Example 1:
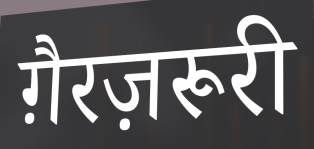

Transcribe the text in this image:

ग़ैरज़रूरी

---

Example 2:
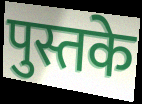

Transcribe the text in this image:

पुस्तके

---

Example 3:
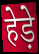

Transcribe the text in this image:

हेड़े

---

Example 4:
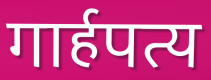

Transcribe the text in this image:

गार्हपत्य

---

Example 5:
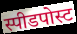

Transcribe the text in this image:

स्पीडपोस्ट